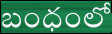
బంధంలో